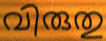
വിരുതു